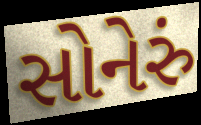
સોનેરું